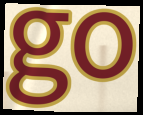
go